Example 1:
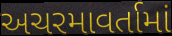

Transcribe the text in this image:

અચરમાવર્તામાં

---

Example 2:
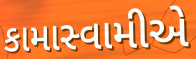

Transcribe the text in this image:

કામાસ્વામીએ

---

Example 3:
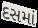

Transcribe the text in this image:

દસમાં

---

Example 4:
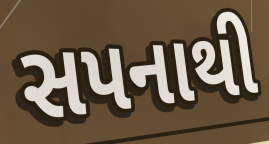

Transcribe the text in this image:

સપનાથી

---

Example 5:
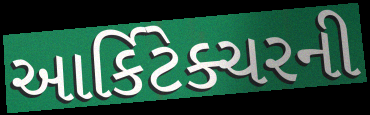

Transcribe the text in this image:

આર્કિટેક્ચરની